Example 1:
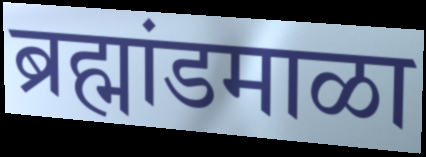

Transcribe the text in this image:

ब्रह्मांडमाळा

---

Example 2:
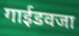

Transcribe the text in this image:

गाईडवजा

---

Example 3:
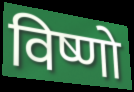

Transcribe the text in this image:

विष्णो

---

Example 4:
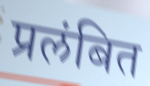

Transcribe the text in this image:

प्रलंबित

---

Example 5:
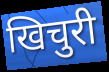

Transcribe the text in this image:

खिचुरी